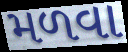
મળવા